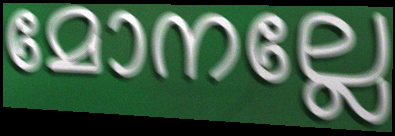
മോനല്ലേ